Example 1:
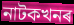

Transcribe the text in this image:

নাটকখনৰ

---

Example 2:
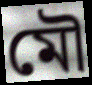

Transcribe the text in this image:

মৌ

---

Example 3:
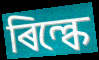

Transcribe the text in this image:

ৰিল্কে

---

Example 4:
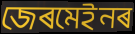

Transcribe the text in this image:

জেৰমেইনৰ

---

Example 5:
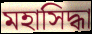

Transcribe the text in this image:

মহাসিদ্ধা